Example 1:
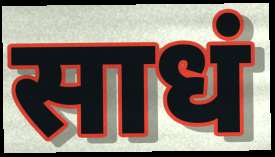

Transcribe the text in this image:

साधं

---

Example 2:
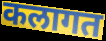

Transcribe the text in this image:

कलागत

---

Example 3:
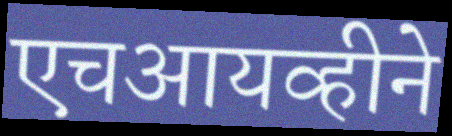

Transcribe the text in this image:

एचआयव्हीने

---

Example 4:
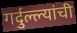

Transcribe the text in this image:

गर्दुल्ल्यांची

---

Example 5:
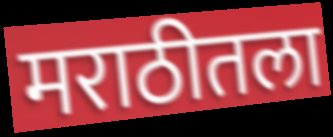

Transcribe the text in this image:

मराठीतला